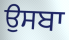
ਉਸਬਾ